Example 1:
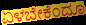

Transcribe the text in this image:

ಏಳಬೇಕೆಂದೂ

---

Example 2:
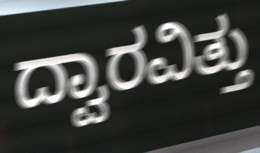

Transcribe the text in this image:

ದ್ವಾರವಿತ್ತು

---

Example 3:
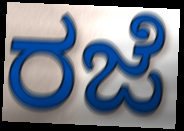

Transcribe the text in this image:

ರಜೆ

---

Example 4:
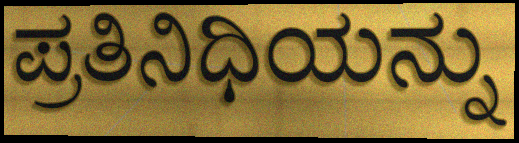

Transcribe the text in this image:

ಪ್ರತಿನಿಧಿಯನ್ನು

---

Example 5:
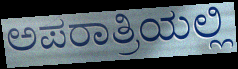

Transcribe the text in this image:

ಅಪರಾತ್ರಿಯಲ್ಲಿ